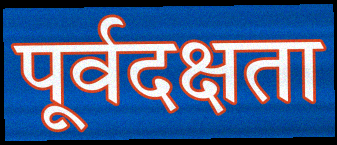
पूर्वदक्षता